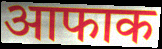
आफाक